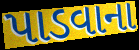
પાડવાના